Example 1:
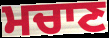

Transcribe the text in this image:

ਮਚਾਣ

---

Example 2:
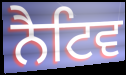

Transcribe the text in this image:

ਨੈਟਿਵ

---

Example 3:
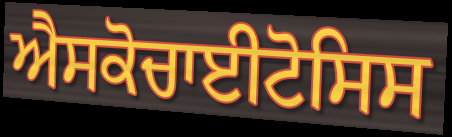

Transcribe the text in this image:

ਐਸਕੋਚਾਈਟੋਸਿਸ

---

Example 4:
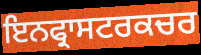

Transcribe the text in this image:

ਇਨਫ੍ਰਾਸਟਰਕਚਰ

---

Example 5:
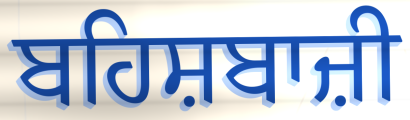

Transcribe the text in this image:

ਬਹਿਸ਼ਬਾਜ਼ੀ